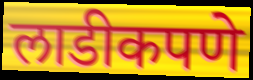
लाडीकपणे